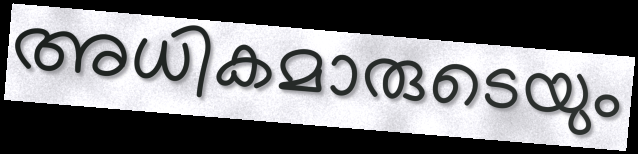
അധികമാരുടെയും